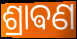
ଶ୍ରାଵଣ